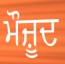
ਮੌਜ਼ੂਦ